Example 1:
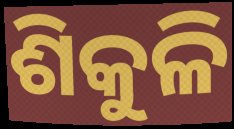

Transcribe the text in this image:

ଶିକୁଳି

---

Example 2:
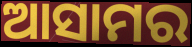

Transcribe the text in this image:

ଆସାମର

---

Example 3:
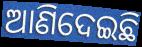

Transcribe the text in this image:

ଆଣିଦେଇଛି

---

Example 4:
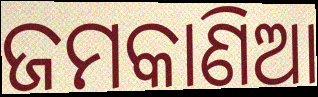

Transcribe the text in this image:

ଜମକାଣିଆ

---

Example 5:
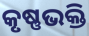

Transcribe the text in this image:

କୃଷ୍ଣଭକ୍ତି